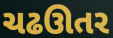
ચઢઊતર